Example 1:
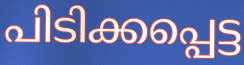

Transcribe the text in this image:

പിടിക്കപ്പെട്ട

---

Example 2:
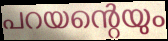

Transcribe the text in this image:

പറയന്റെയും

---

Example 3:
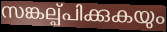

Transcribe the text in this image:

സങ്കല്പ്പിക്കുകയും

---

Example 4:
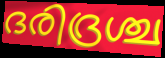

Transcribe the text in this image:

ദരിദ്രശ്ച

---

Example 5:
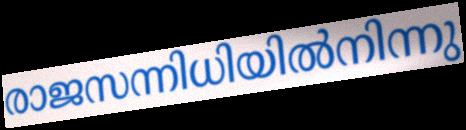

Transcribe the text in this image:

രാജസന്നിധിയിൽനിന്നു